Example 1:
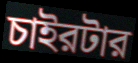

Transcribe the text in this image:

চাইরটার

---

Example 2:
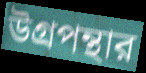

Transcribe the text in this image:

উগ্রপন্থার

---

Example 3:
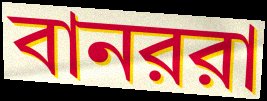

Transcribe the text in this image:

বানররা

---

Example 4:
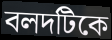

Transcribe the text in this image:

বলদটিকে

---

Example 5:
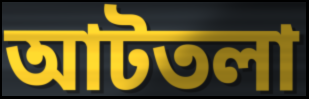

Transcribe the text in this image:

আটতলা